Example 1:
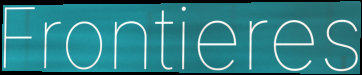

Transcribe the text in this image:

Frontieres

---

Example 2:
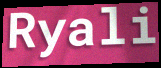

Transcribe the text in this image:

Ryali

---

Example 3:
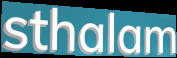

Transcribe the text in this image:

sthalam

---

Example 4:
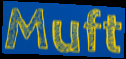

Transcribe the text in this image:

Muft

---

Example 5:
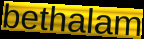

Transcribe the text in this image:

bethalam